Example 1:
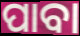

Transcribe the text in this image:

ପାବା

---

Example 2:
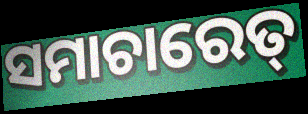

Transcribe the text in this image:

ସମାଚାରେତ୍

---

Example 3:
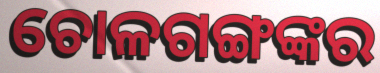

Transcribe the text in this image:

ଚୋଳଗଙ୍ଗଙ୍କର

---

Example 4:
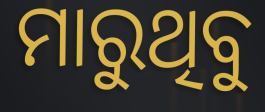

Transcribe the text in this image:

ମାରୁଥିବୁ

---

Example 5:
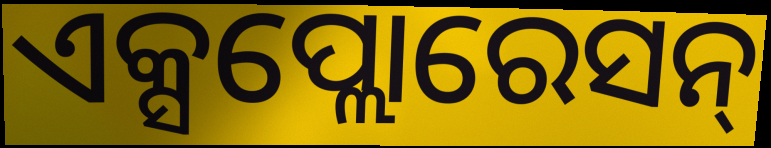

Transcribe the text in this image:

ଏକ୍ସପ୍ଲୋରେସନ୍